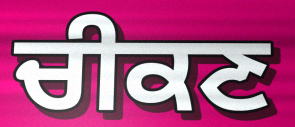
ਚੀਕਣ